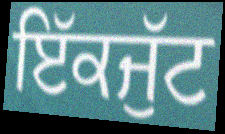
ਇੱਕਜੁੱਟ